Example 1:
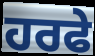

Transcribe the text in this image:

ਹਰਫੇ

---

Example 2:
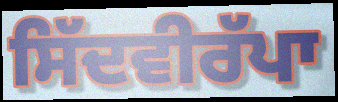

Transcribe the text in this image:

ਸਿੱਦਵੀਰੱਪਾ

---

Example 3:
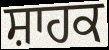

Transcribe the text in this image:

ਸ਼ਾਹਕ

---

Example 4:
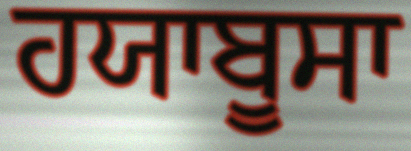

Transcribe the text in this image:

ਹਯਾਬੂਸਾ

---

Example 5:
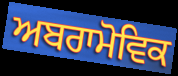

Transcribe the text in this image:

ਅਬਰਾਮੋਵਿਕ